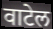
वाटेल